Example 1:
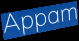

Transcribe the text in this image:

Appam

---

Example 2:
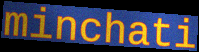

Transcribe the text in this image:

minchati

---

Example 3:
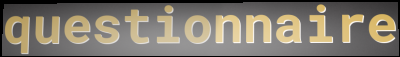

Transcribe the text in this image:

questionnaire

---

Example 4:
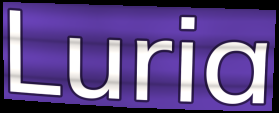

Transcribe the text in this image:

Luria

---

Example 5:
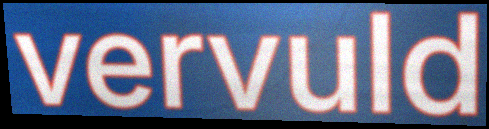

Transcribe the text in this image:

vervuld